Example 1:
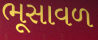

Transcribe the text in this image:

ભૂસાવળ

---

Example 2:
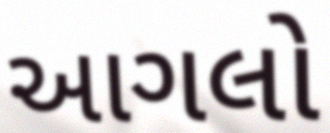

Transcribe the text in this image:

આગલો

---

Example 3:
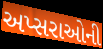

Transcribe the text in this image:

અપ્સરાઓની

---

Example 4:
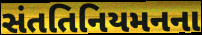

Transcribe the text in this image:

સંતતિનિયમનના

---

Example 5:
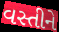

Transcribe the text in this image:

વસ્તીને